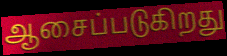
ஆசைப்படுகிறது